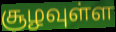
சூழவுள்ள